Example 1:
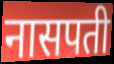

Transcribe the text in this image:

नासपती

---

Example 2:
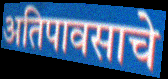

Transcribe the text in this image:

अतिपावसाचे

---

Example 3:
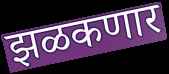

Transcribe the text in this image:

झळकणार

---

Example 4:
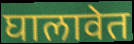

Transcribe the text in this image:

घालावेत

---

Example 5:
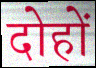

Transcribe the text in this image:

दोहों